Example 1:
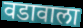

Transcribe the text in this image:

वडावाला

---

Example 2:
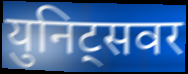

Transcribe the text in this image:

युनिट्सवर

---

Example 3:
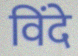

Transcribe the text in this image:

विंदे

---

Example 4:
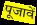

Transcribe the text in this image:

पूजावें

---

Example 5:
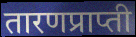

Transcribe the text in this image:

तारणप्राप्ती